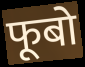
फूबो